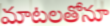
మాటలతోనూ